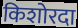
किशोरदा